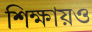
শিক্ষায়ও